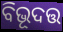
ବିଭୂଦତ୍ତ